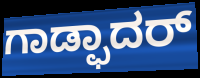
ಗಾಡ್ಫಾದರ್